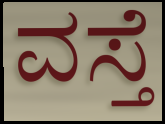
ವಸ್ತೆ